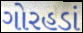
ગોરહડાં